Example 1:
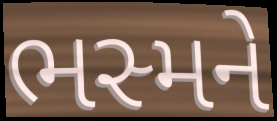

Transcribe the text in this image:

ભસ્મને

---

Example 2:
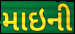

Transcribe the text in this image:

માઇની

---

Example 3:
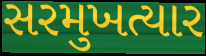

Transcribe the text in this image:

સરમુખત્યાર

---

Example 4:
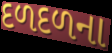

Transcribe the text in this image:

દળદળના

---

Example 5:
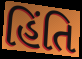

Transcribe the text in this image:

હિંતિ